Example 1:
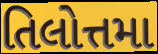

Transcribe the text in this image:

તિલોત્તમા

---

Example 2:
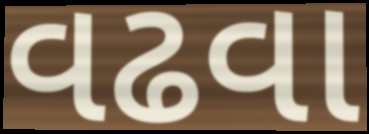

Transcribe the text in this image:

વઢવા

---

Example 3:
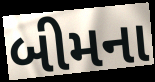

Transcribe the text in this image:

બીમના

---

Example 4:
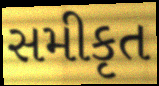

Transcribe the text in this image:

સમીકૃત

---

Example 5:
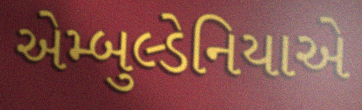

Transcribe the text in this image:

એમ્બુલ્ડેનિયાએ